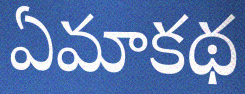
ఏమాకథ